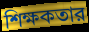
শিক্ষকতার